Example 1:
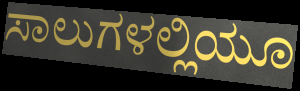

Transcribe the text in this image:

ಸಾಲುಗಳಲ್ಲಿಯೂ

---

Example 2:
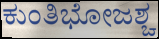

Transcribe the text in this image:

ಕುಂತಿಭೋಜಶ್ಚ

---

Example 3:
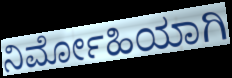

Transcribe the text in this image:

ನಿರ್ಮೋಹಿಯಾಗಿ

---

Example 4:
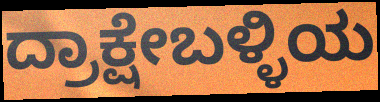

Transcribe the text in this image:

ದ್ರಾಕ್ಷೇಬಳ್ಳಿಯ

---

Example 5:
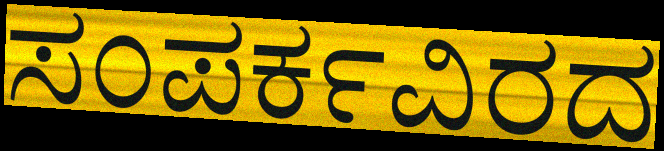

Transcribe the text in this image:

ಸಂಪರ್ಕವಿರದ